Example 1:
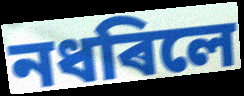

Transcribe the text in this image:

নধৰিলে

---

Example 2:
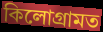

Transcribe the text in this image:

কিলোগ্ৰামত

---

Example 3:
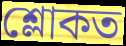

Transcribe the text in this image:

শ্লোকত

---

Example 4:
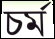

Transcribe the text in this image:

চৰ্ম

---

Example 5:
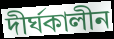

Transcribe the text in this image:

দীৰ্ঘকালীন